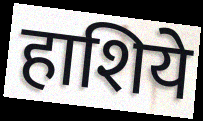
हाशिये